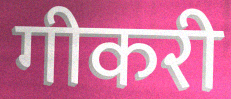
गीकरी